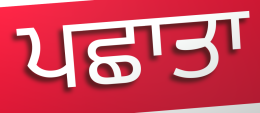
ਪਛਾਤਾ